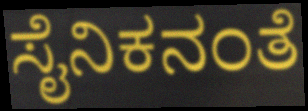
ಸೈನಿಕನಂತೆ